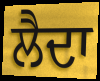
ਲੈਦਾ